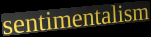
sentimentalism